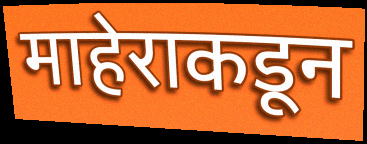
माहेराकडून